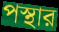
পস্থার